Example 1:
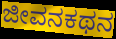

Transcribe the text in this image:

ಜೀವನಕಥನ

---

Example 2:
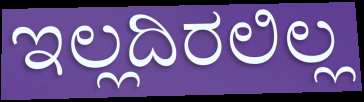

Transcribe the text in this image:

ಇಲ್ಲದಿರಲಿಲ್ಲ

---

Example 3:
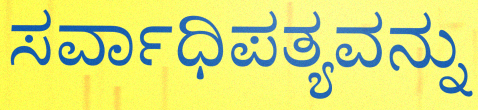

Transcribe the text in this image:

ಸರ್ವಾಧಿಪತ್ಯವನ್ನು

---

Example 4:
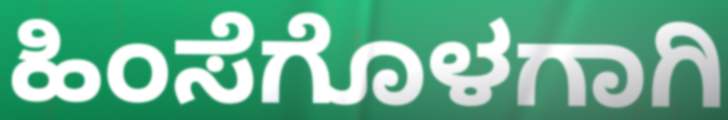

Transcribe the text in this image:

ಹಿಂಸೆಗೊಳಗಾಗಿ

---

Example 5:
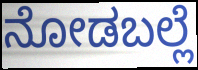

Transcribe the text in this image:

ನೋಡಬಲ್ಲೆ